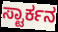
ಸ್ಟಾರ್ಕನ